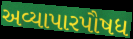
અવ્યાપારપૌષધ